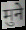
मुने